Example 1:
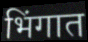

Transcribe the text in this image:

भिंगात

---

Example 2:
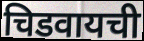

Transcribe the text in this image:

चिडवायची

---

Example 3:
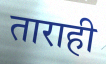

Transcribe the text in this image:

ताराही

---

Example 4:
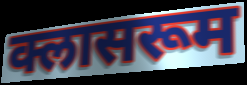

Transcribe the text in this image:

क्लासरूम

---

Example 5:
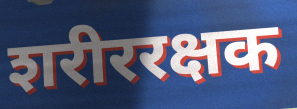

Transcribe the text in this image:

शरीररक्षक